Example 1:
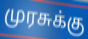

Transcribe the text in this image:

முரசுக்கு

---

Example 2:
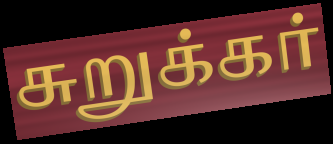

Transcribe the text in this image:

சுறுக்கர்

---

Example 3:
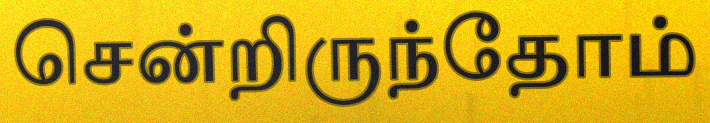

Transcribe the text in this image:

சென்றிருந்தோம்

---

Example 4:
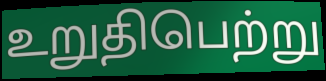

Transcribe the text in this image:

உறுதிபெற்று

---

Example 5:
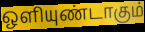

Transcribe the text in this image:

ஒளியுண்டாகும்